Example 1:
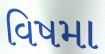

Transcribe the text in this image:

વિષમા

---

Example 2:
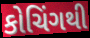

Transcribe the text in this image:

કોચિંગથી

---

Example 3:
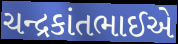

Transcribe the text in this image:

ચન્દ્રકાંતભાઈએ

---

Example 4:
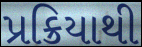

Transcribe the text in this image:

પ્રક્રિયાથી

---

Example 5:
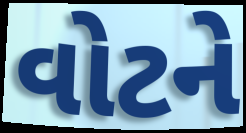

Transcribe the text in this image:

વોટને